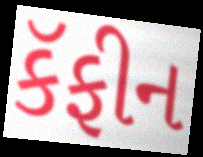
કૅફીન